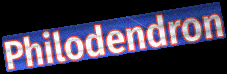
Philodendron